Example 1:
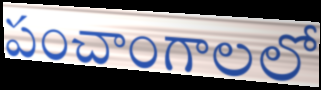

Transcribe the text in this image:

పంచాంగాలలో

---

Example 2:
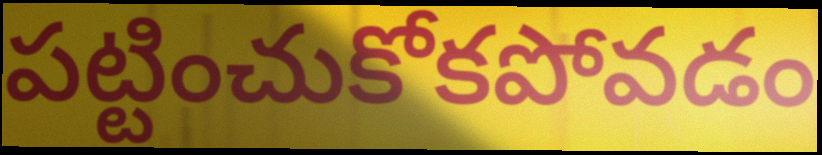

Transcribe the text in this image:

పట్టించుకోకపోవడం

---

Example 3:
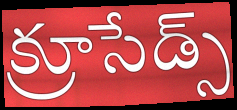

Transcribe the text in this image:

క్రూసేడ్స్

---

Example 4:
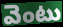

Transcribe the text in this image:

వెంటు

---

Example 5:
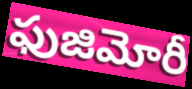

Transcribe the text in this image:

ఫుజిమోరీ